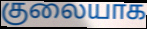
குலையாக